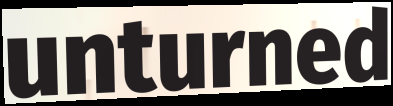
unturned